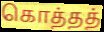
கொத்தத்